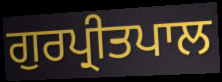
ਗੁਰਪ੍ਰੀਤਪਾਲ